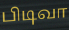
பிடிவா